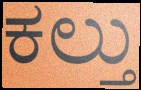
ಕಲ್ತು